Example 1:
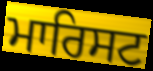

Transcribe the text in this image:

ਮਾਰਿਸਟ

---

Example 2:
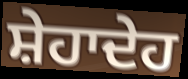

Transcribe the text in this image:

ਸ਼ੇਹਾਦੇਹ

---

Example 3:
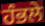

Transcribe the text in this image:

ਹੰਭਲੇ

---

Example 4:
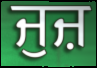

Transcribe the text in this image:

ਜੁਜ਼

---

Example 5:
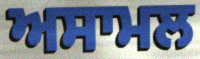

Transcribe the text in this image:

ਅਸਾਮਲ